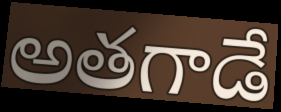
అతగాడే